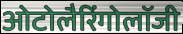
ओटोलैरिंगोलॉजी